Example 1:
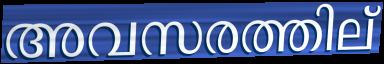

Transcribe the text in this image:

അവസരത്തില്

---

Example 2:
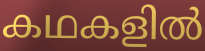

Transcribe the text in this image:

കഥകളിൽ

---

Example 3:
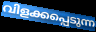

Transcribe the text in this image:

വിളക്കപ്പെടുന്ന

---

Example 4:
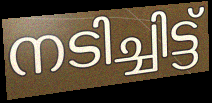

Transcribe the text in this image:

നടിച്ചിട്ട്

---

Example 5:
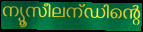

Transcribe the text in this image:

ന്യൂസീലന്ഡിന്റെ